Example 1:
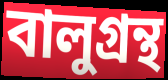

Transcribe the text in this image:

বালুগ্রন্থ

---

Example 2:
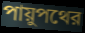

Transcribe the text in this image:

পায়ুপথের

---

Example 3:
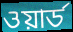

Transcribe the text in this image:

ওয়ার্ড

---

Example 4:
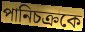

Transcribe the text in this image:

পানিচক্রকে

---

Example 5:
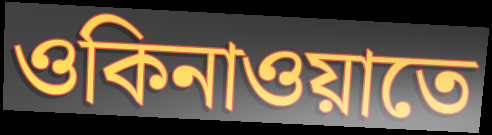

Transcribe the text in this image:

ওকিনাওয়াতে